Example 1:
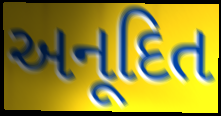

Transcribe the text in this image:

અનૂદિત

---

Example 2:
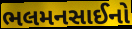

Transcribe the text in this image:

ભલમનસાઈનો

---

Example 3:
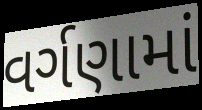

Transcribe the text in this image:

વર્ગણામાં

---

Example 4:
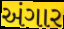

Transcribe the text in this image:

અંગાર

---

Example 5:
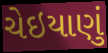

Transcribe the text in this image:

ચેઇયાણું